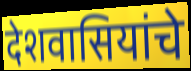
देशवासियांचे